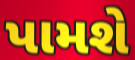
પામશે